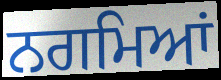
ਨਗਮਿਆਂ